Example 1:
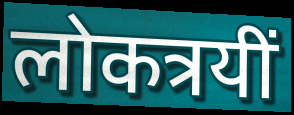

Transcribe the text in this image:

लोकत्रयीं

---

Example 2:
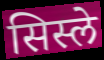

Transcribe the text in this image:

सिस्ले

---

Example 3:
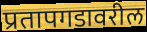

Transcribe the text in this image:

प्रतापगडावरील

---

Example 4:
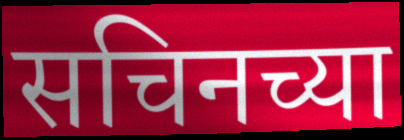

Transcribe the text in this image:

सचिनच्या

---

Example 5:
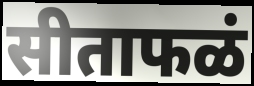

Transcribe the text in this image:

सीताफळं